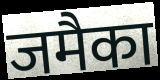
जमैका